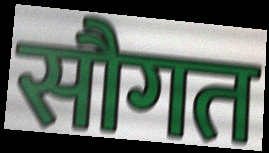
सौगत